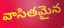
వాసితమైన